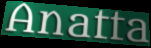
Anatta